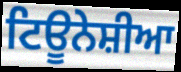
ਟਿਊਨੇਸ਼ੀਆ